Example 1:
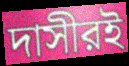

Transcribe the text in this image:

দাসীরই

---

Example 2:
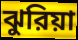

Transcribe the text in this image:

ঝুরিয়া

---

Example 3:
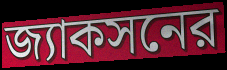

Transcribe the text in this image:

জ্যাকসনের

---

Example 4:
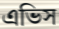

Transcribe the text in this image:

এভিস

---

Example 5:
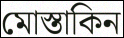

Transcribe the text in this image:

মোস্তাকিন